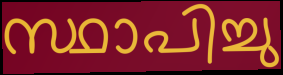
സ്ഥാപിച്ചു